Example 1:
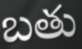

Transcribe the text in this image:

బతు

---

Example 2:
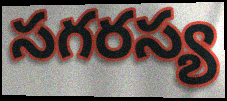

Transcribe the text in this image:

సగరస్య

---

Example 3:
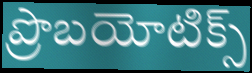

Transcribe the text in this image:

ప్రొబయోటిక్స్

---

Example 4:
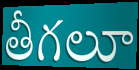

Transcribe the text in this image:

తీగలూ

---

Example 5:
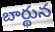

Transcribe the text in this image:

బార్థున